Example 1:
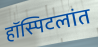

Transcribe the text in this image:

हॉस्पिटलांत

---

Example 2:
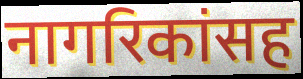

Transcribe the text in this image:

नागरिकांसह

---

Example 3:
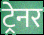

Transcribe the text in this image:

ट्रेनर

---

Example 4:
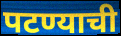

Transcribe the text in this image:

पटण्याची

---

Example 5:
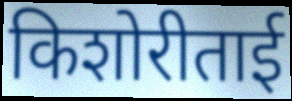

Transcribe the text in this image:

किशोरीताई